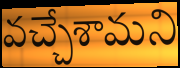
వచ్చేశామని